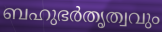
ബഹുഭർതൃത്വവും